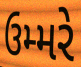
ઉમ્મરે